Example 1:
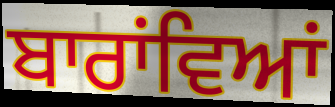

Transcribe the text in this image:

ਬਾਰਾਂਵਿਆਂ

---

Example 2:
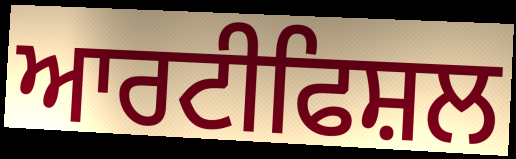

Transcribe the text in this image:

ਆਰਟੀਫਿਸ਼ਲ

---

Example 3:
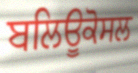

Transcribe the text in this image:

ਬਲਿਊਕੋਸਲ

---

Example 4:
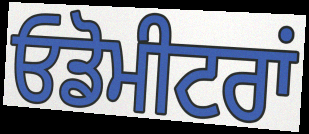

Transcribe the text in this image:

ਓਡੋਮੀਟਰਾਂ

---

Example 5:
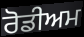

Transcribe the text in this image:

ਰੋਡੀਅਮ